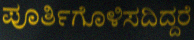
ಪೂರ್ತಿಗೊಳಿಸದಿದ್ದರೆ